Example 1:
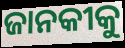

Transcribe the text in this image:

ଜାନକୀକୁ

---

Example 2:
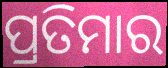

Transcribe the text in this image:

ପ୍ରତିମାର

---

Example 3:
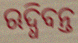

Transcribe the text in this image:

ଋଦ୍ଧିବନ୍ତ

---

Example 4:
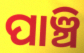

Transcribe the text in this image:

ପାଞ୍ଚି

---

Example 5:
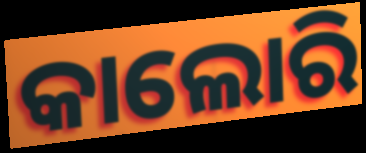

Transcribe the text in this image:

କାଲୋରି